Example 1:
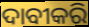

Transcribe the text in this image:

ଦାବୀକରି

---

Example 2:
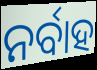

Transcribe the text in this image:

ନର୍ବାହ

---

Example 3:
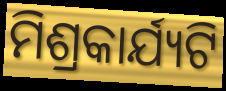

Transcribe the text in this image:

ମିଶ୍ରକାର୍ଯ୍ୟଟି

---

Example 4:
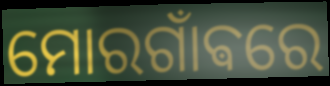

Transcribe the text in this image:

ମୋରଗାଁଵରେ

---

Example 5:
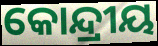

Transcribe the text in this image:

କୋନ୍ଦ୍ରୀୟ